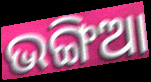
ଭଙ୍ଗିଆ